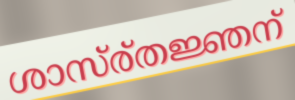
ശാസ്ര്തജ്ഞന്